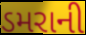
ડમરાની